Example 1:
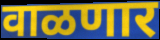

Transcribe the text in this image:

वाळणार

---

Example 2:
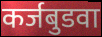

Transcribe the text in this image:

कर्जबुडवा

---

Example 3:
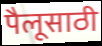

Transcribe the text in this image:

पैलूसाठी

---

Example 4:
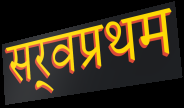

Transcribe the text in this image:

सर्वप्रथम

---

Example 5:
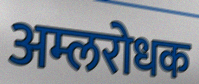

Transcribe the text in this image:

अम्लरोधक